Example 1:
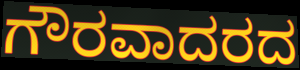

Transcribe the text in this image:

ಗೌರವಾದರದ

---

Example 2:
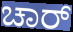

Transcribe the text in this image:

ಚಾರ್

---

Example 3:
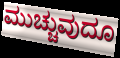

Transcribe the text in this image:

ಮುಚ್ಚುವುದೂ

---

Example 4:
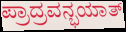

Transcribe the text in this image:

ಪ್ರಾದ್ರವನ್ಭಯಾತ್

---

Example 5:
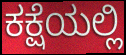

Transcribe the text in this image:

ಕಕ್ಷೆಯಲ್ಲಿ